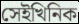
সেইখিনিক